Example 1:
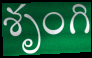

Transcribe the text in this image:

శృంగి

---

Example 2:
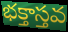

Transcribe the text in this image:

భక్తాస్తవ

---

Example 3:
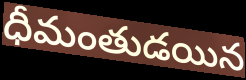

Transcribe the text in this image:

ధీమంతుడయిన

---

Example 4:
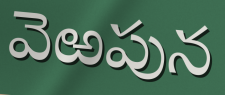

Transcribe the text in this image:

వెఱపున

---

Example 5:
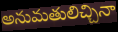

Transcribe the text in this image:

అనుమతులిచ్చినా